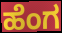
ಹೆಂಗ